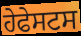
ਹੇਫੇਸਟਸ